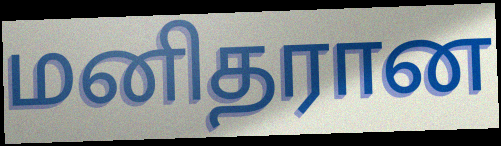
மனிதரான